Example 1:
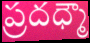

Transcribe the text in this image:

ప్రదధ్మౌ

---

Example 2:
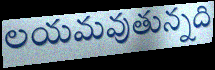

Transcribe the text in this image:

లయమవుతున్నది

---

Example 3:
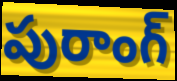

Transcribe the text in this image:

పురాంగ్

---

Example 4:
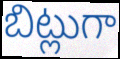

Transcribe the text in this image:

బిట్లుగా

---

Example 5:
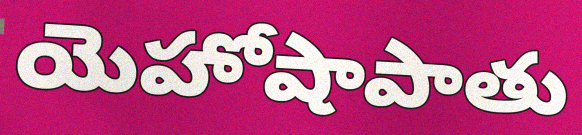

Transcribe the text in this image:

యెహోషాపాతు